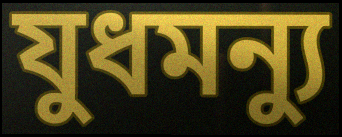
যুধমন্যু